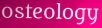
osteology